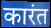
कारंत